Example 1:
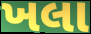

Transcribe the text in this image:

ખલા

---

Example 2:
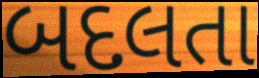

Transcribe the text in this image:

બદલતા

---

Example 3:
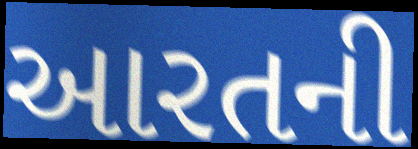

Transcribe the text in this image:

આરતની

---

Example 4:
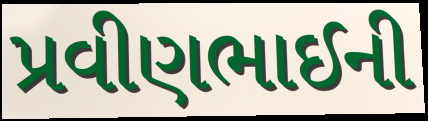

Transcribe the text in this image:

પ્રવીણભાઈની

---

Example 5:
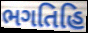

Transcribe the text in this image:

ભગતિહિ